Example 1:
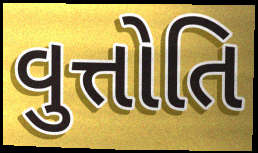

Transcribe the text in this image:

વુત્તોતિ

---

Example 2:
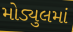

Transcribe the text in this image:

મોડ્યુલમાં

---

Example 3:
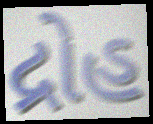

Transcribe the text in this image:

દ્રોહ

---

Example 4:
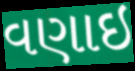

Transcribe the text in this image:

વણાઇ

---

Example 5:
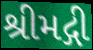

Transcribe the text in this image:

શ્રીમદ્ગી